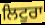
ਲਿਟੁਰਾ